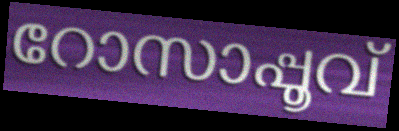
റോസാപ്പൂവ്